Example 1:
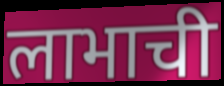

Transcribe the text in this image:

लाभाची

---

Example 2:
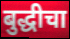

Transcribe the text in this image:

बुद्धीचा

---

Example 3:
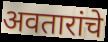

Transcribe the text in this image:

अवतारांचे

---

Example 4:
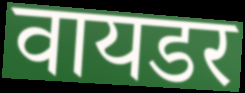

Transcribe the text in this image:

वायडर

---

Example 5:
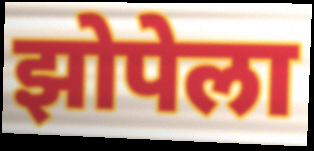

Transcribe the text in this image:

झोपेला